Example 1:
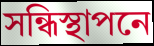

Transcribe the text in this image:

সন্ধিস্থাপনে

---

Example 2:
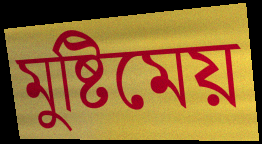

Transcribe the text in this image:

মুষ্টিমেয়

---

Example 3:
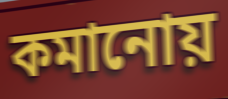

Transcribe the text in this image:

কমানোয়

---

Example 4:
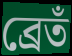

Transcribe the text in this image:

ব্রেতঁ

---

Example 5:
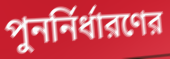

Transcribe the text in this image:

পুনর্নির্ধারণের